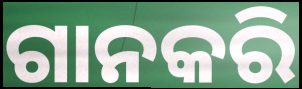
ଗାନକରି